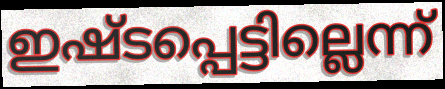
ഇഷ്ടപ്പെട്ടില്ലെന്ന്